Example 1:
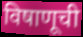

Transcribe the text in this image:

विषाणूची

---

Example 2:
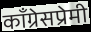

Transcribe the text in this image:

काँग्रेसप्रेमी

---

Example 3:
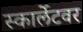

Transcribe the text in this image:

स्कार्लेटवर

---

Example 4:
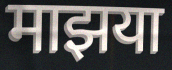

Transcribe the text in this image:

माझया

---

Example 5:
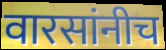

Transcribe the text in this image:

वारसांनीच